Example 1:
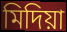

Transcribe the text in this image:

মিদিয়া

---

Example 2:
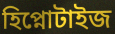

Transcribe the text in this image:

হিপ্নোটাইজ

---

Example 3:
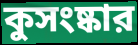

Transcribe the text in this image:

কুসংষ্কার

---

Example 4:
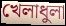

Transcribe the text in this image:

খেলাধুলা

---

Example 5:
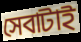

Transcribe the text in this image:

সেবাটাই